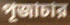
পূজাচার